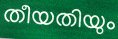
തീയതിയും